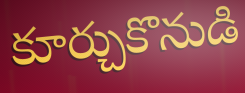
కూర్చుకొనుడి